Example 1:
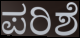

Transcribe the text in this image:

ಪರಿಶೆ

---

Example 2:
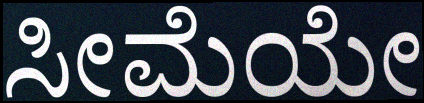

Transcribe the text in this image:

ಸೀಮೆಯೇ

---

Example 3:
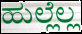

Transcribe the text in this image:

ಹುಲ್ಲೆಲ್ಲ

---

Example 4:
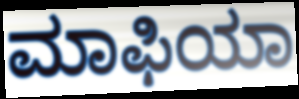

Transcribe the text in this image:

ಮಾಫಿಯಾ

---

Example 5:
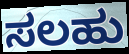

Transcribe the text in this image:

ಸಲಹು